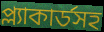
প্ল্যাকার্ডসহ